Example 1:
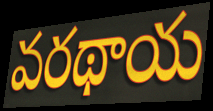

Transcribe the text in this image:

వరథాయ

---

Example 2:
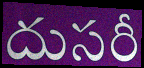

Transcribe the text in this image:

దుసరీ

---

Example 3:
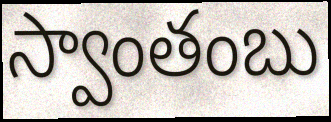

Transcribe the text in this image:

స్వాంతంబు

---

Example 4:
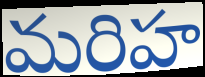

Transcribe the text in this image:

మరిహ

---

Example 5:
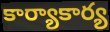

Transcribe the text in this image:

కార్యాకార్య